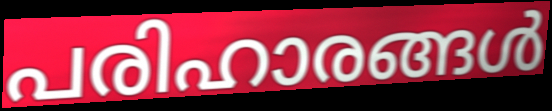
പരിഹാരങ്ങൾ